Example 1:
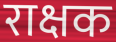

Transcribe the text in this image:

राक्षक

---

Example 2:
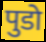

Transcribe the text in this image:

पुडो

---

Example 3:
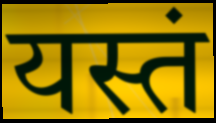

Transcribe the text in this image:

यस्तं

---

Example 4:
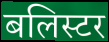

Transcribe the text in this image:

बलिस्टर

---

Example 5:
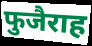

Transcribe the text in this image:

फुजैराह